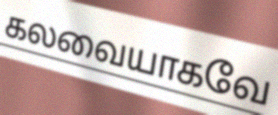
கலவையாகவே